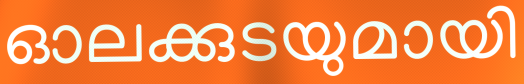
ഓലക്കുടയുമായി